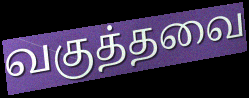
வகுத்தவை